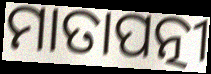
ମାତାପତ୍ନୀ